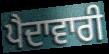
ਪੈਦਾਵਾਰੀ